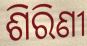
ଶିରିଣୀ